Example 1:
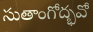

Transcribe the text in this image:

సుతాంగోద్భవో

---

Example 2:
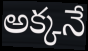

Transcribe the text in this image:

అక్కనే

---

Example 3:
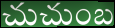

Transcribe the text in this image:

చుచుంబ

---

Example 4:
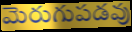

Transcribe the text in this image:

మెరుగుపడవు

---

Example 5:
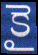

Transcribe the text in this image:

కై